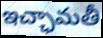
ఇచ్ఛామతీ